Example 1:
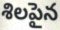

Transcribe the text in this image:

శిలపైన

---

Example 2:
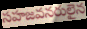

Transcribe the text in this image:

సహజవనరులైన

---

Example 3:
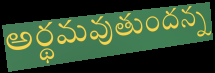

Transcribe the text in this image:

అర్థమవుతుందన్న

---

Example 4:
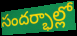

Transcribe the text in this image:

సందర్భాల్లో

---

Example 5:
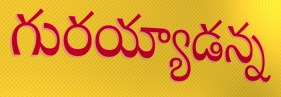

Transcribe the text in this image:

గురయ్యాడన్న